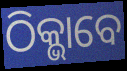
ଠିକ୍ଭାବେ